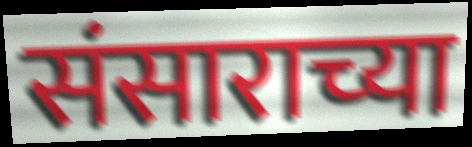
संसाराच्या